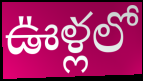
ఊళ్లలో